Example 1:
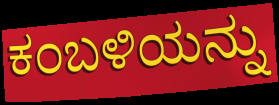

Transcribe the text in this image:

ಕಂಬಳಿಯನ್ನು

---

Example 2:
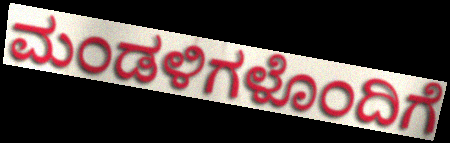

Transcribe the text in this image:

ಮಂಡಳಿಗಳೊಂದಿಗೆ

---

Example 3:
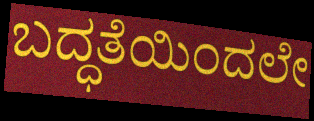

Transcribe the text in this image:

ಬದ್ಧತೆಯಿಂದಲೇ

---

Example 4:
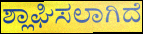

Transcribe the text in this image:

ಶ್ಲಾಘಿಸಲಾಗಿದೆ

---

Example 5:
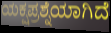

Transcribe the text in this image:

ಯಕ್ಷಪ್ರಶ್ನೆಯಾಗಿದೆ